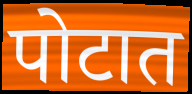
पोटात